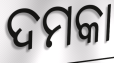
ଦମକା